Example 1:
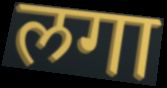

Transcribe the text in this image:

लगा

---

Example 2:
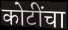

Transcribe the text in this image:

कोटींचा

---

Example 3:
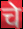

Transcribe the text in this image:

चे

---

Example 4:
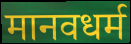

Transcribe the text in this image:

मानवधर्म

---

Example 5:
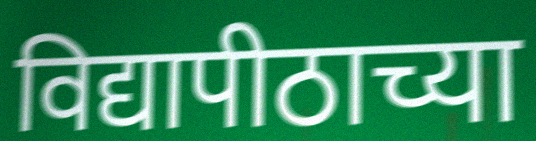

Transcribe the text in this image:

विद्यापीठाच्या